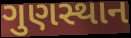
ગુણસ્થાન